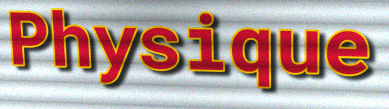
Physique